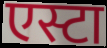
एस्टा